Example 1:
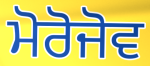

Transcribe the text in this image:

ਮੋਰੋਜੋਵ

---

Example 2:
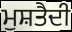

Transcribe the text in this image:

ਮੁਸ਼ਤੈਦੀ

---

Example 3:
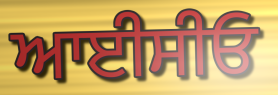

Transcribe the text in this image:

ਆਈਸੀਓ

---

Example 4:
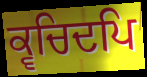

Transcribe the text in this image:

ਕ੍ਵਚਿਦਪਿ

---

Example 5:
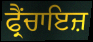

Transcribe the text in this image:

ਫ੍ਰੈਂਚਾਇਜ਼